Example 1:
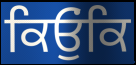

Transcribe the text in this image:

ਕਿਓੁਂਕਿ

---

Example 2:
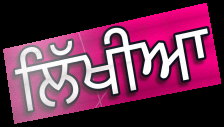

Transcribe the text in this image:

ਲਿੱਖੀਆ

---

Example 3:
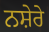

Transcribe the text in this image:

ਨਸ਼ੇਰੇ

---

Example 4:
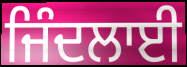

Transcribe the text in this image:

ਜਿੰਦਲਾਈ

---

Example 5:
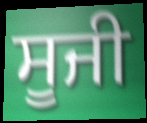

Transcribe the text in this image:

ਸੂਜੀ